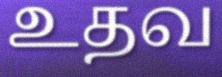
உதவ